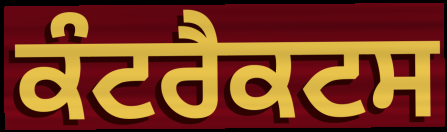
ਕੰਟਰੈਕਟਸ